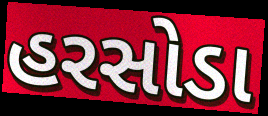
હરસોડા